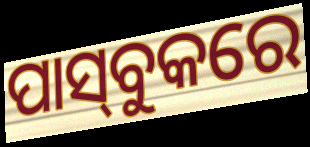
ପାସ୍‌ବୁକରେ